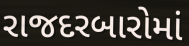
રાજદરબારોમાં